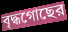
বৃদ্ধগোছের